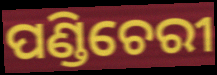
ପଣ୍ଡିଚେରୀ